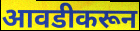
आवडीकरून